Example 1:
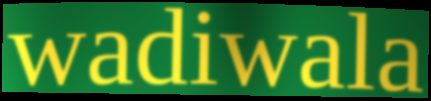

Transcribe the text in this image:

wadiwala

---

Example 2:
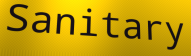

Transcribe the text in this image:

Sanitary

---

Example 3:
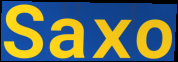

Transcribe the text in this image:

Saxo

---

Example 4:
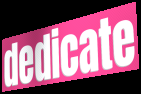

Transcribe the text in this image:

dedicate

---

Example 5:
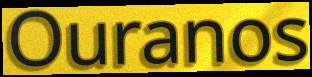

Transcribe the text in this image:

Ouranos